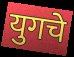
युगचे